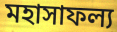
মহাসাফল্য